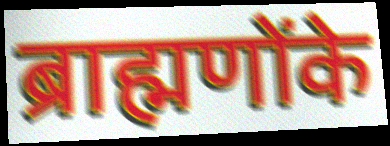
ब्राह्मणोंके